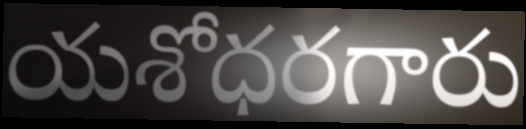
యశోధరగారు